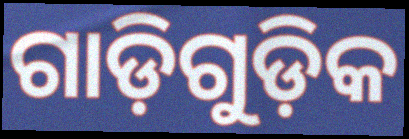
ଗାଡ଼ିଗୁଡ଼ିକ